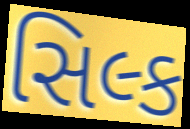
સિલ્ક